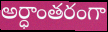
అర్ధాంతరంగా